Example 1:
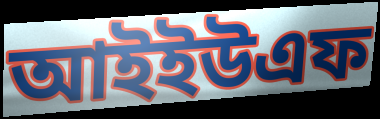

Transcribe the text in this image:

আইইউএফ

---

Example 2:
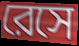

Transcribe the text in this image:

রেসে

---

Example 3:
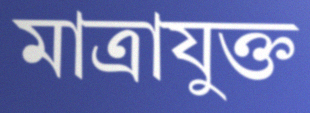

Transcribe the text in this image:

মাত্রাযুক্ত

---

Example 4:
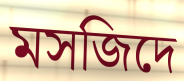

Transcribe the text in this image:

মসজিদে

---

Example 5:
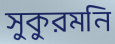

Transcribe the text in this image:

সুকুরমনি